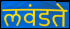
लवंडते